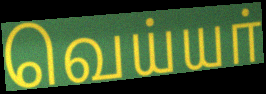
வெய்யர்